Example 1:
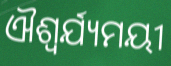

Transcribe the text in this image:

ଐଶ୍ୱର୍ଯ୍ୟମୟୀ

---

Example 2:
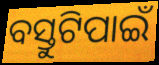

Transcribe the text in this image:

ବସ୍ତୁଟିପାଇଁ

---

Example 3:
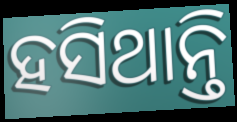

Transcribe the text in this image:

ହସିଥାନ୍ତି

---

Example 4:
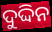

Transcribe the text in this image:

ଦୁଦ୍ଦିନ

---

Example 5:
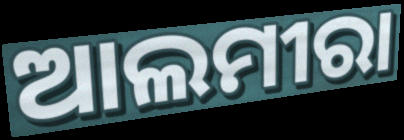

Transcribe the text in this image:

ଆଲମୀରା